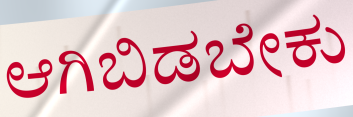
ಆಗಿಬಿಡಬೇಕು